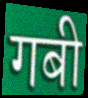
गबी